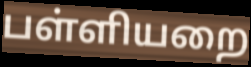
பள்ளியறை